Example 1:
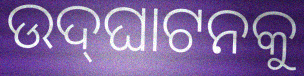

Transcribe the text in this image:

ଉଦ୍‌ଘାଟନକୁ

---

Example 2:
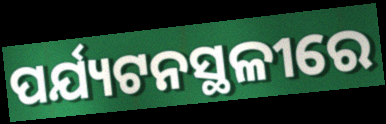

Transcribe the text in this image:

ପର୍ଯ୍ୟଟନସ୍ଥଳୀରେ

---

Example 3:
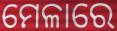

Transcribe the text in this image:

ମେଳାରେ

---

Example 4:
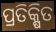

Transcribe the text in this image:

ପ୍ରତିକ୍ଷିତ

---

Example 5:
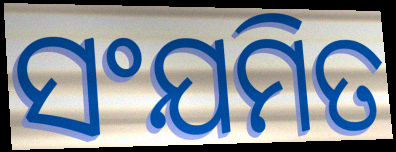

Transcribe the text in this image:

ସଂଯମିତ